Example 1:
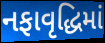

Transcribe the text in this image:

નફાવૃદ્ધિમાં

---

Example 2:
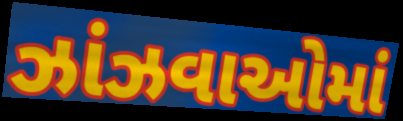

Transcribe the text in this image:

ઝાંઝવાઓમાં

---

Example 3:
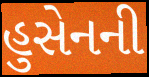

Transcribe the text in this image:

હુસેનની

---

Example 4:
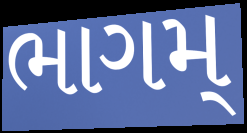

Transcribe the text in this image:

ભાગમ્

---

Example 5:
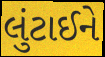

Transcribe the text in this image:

લુંટાઈને